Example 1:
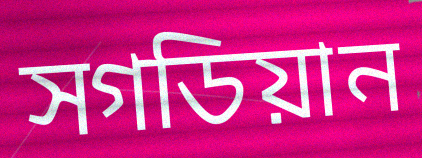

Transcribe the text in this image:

সগডিয়ান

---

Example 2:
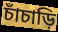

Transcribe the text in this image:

চাঁচাড়ি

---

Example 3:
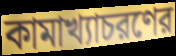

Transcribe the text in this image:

কামাখ্যাচরণের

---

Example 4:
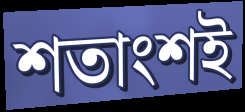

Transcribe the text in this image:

শতাংশই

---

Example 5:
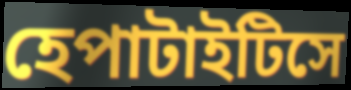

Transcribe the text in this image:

হেপাটাইটিসে